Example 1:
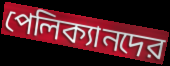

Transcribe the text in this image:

পেলিক্যানদের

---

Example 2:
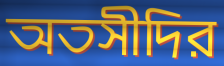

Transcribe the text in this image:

অতসীদির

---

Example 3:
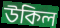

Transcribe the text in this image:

উকিল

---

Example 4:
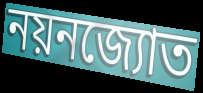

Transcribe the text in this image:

নয়নজ্যোত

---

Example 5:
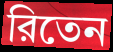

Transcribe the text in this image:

রিতেন